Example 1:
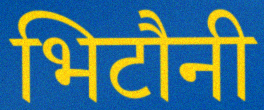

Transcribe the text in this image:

भिटौनी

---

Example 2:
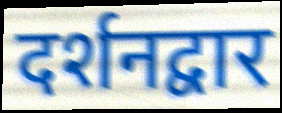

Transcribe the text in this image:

दर्शनद्वार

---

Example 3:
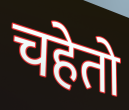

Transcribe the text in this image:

चहेतो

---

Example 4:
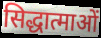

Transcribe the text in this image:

सिद्धात्माओं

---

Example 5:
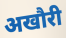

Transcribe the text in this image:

अखौरी